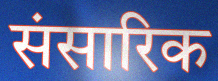
संसारिक